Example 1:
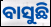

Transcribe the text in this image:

ବାସୁଛି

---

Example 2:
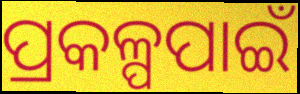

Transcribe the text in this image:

ପ୍ରକଳ୍ପପାଇଁ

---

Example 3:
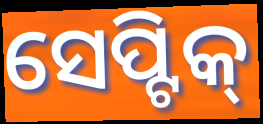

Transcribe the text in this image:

ସେପ୍ଟିକ୍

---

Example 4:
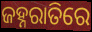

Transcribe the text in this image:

ଜହ୍ନରାତିରେ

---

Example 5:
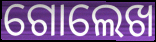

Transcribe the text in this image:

ଗୋଲେଖ